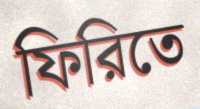
ফিরিতে